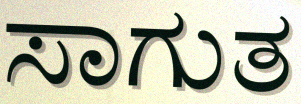
ಸಾಗುತ